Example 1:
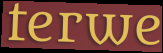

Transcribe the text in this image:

terwe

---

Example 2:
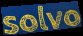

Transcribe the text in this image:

solvo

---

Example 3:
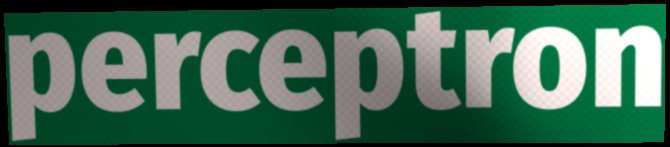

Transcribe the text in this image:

perceptron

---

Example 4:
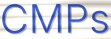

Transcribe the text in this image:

CMPs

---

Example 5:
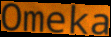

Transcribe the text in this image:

Omeka